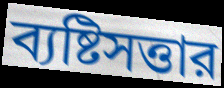
ব্যষ্টিসত্তার